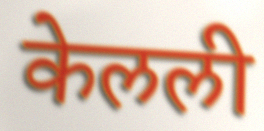
केलली